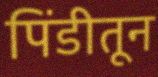
पिंडीतून